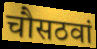
चौसठवां